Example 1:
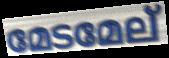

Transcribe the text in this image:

മേടമേല്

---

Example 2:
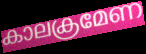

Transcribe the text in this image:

കാലക്രമേണ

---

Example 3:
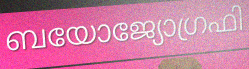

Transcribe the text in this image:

ബയോജ്യോഗ്രഫി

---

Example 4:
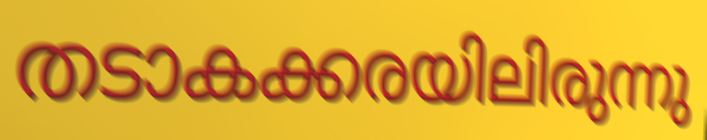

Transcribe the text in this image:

തടാകക്കരയിലിരുന്നു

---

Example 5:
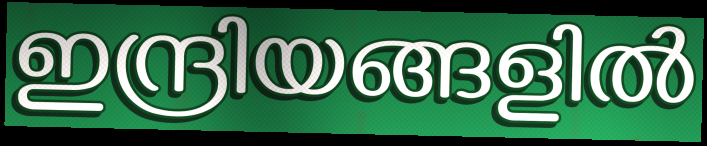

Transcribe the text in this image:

ഇന്ദ്രിയങ്ങളിൽ